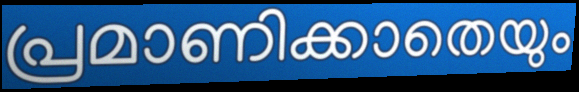
പ്രമാണിക്കാതെയും